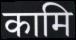
कामि